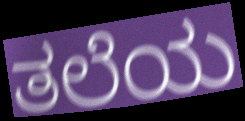
ತಲೆಯ